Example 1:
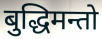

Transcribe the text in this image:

बुद्धिमन्तो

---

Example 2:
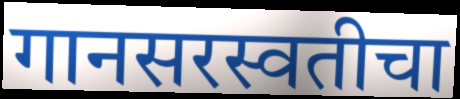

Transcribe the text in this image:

गानसरस्वतीचा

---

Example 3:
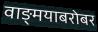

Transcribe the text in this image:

वाङ्मयाबरोबर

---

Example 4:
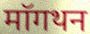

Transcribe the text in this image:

मॉगथन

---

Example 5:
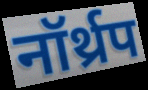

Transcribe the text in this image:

नॉर्थ्रप